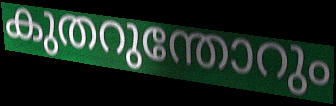
കുതറുന്തോറും